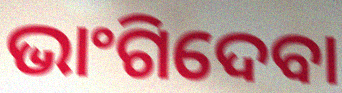
ଭାଂଗିଦେବା